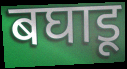
बघाडू